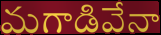
మగాడివేనా